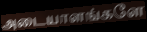
அடையாளங்களே